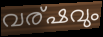
വര്ഷവും